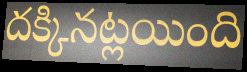
దక్కినట్లయింది